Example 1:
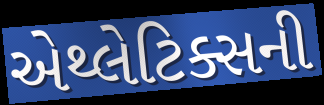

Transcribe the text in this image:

એથ્લેટિક્સની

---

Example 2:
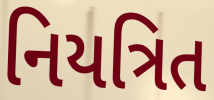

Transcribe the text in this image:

નિયત્રિત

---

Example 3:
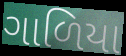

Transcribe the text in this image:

ગાળિયા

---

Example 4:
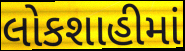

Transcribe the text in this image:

લોકશાહીમાં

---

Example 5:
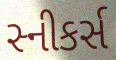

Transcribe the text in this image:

સ્નીકર્સ